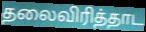
தலைவிரித்தாட